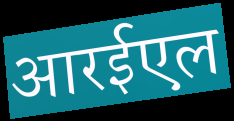
आरईएल